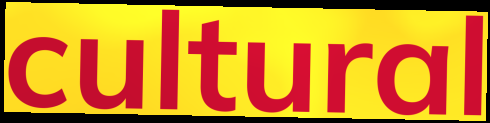
cultural